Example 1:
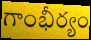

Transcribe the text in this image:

గాంభీర్యం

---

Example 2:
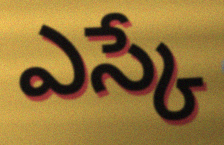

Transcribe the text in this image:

ఎస్కే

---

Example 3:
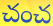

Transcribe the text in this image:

చంచ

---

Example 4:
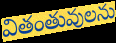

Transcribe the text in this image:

వితంతువులను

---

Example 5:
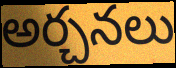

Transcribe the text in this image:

అర్చనలు